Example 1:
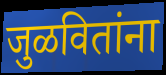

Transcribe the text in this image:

जुळवितांना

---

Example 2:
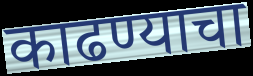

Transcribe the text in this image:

काढण्याचा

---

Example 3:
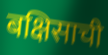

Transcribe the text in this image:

बक्षिसाची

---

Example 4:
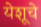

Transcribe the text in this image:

येशूचे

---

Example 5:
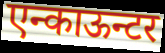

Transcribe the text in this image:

एन्काऊन्टर